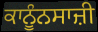
ਕਾਨੂੰਨਸਾਜ਼ੀ